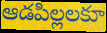
ఆడపిల్లలకూ